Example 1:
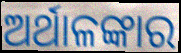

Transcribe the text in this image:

ଅର୍ଥାଳଙ୍କାର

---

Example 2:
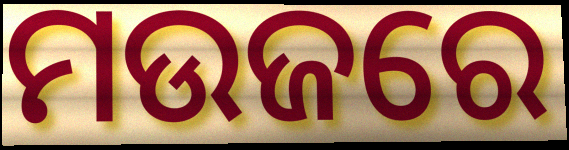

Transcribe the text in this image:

ମଉଜରେ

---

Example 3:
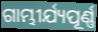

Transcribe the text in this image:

ଗାମ୍ଭୀର୍ଯ୍ୟପୂର୍ଣ୍ଣ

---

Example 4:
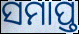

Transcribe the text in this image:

ସମାପ୍ତ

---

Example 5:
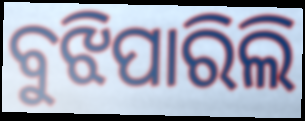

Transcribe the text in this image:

ବୁଝିପାରିଲି